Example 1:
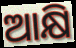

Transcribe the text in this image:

ଆକ୍ଷି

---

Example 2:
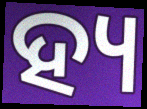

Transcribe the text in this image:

ହ୍ୟ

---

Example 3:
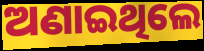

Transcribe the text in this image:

ଅଣାଇଥିଲେ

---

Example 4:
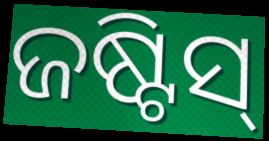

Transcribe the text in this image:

ଜଷ୍ଟିସ୍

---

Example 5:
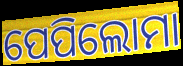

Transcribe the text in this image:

ପେପିଲୋମା